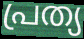
പ്രത്യ